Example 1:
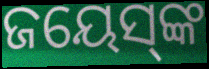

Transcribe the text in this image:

ଜୟେସ୍‌ଙ୍କ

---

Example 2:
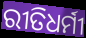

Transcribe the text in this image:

ରୀତିଧର୍ମୀ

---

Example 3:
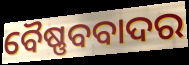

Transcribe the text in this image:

ବୈଷ୍ଣବବାଦର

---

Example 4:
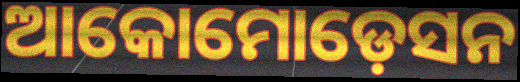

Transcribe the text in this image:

ଆକୋମୋଡ଼େସନ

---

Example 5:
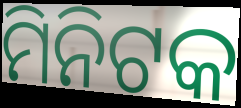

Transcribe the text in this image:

ମିନିଟକ